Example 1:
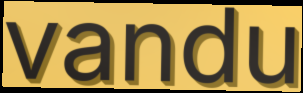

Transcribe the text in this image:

vandu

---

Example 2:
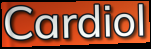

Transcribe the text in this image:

Cardiol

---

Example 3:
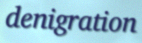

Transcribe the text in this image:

denigration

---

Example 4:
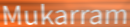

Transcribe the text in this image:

Mukarram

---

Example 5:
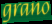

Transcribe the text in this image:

grano